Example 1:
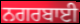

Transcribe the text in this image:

ਨਗਰਬਾਈ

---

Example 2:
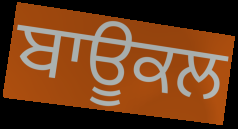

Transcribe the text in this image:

ਬਾਊਕਲ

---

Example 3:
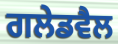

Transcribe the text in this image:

ਗਲੇਡਵੈਲ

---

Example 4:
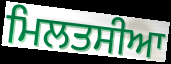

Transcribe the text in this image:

ਮਿਲਤਸੀਆ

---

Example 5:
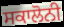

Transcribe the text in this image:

ਸਕਾਲੋਨੀ